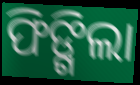
ଫିଙ୍ଗିଲା